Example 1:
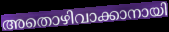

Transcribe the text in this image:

അതൊഴിവാക്കാനായി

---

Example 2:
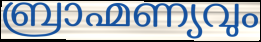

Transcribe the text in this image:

ബ്രാഹ്മണ്യവും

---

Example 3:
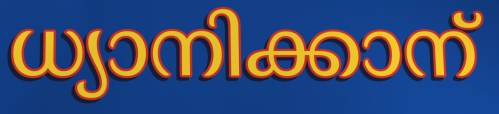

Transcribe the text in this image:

ധ്യാനിക്കാന്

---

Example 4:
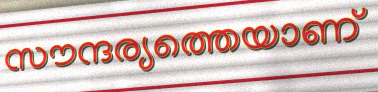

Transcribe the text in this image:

സൗന്ദര്യത്തെയാണ്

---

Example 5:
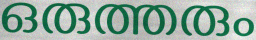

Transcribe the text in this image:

ഒരുത്തരും